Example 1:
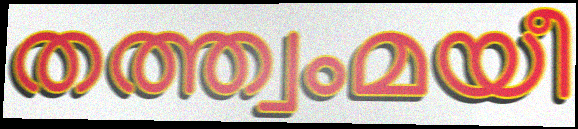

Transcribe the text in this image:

തത്ത്വംമയീ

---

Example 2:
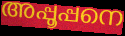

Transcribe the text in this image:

അപ്പൂപ്പനെ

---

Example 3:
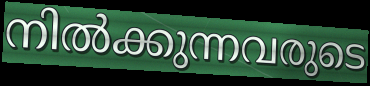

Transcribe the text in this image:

നിൽക്കുന്നവരുടെ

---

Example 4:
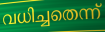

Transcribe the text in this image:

വധിച്ചതെന്ന്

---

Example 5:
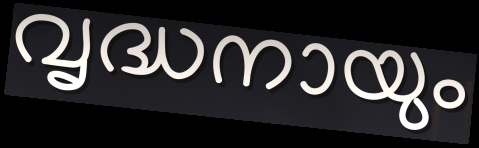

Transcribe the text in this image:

വൃദ്ധനായും